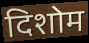
दिशोम